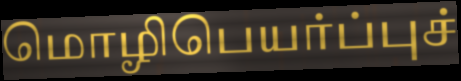
மொழிபெயர்ப்புச்